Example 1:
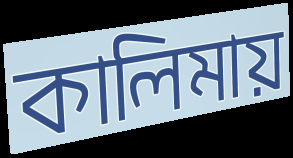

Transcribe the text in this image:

কালিমায়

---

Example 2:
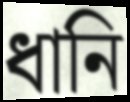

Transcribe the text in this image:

ধানি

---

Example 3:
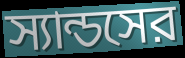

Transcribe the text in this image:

স্যান্ডসের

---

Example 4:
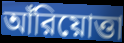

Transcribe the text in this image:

আঁরিয়োত্তা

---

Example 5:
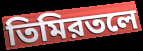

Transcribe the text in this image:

তিমিরতলে